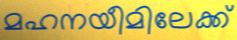
മഹനയീമിലേക്ക്